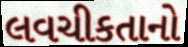
લવચીકતાનો